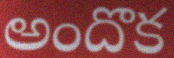
అందొక